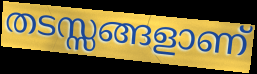
തടസ്സങ്ങളാണ്